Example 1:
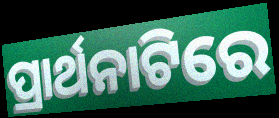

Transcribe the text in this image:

ପ୍ରାର୍ଥନାଟିରେ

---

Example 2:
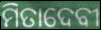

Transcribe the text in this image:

ମିତାଦେବୀ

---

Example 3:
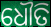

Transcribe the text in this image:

ଧୌତି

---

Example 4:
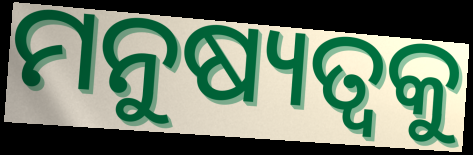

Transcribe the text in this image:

ମନୁଷ୍ୟତ୍ୱକୁ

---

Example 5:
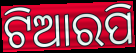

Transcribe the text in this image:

ଟିଆରପି